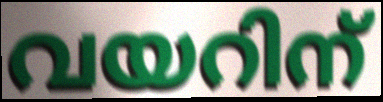
വയറിന്